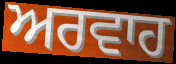
ਅਰਵਾਹ